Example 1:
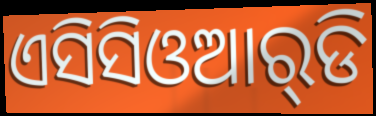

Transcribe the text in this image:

ଏସିସିଓଆର୍‌ଡି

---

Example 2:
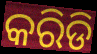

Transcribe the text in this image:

କରିଡି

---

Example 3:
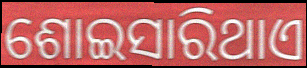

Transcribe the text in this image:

ଶୋଇସାରିଥାଏ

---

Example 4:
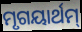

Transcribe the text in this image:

ମୃଗୟାର୍ଥମ୍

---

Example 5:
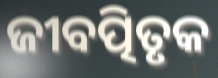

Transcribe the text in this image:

ଜୀବତ୍ପିତୃକ